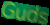
Guds